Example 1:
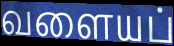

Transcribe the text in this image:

வளையப்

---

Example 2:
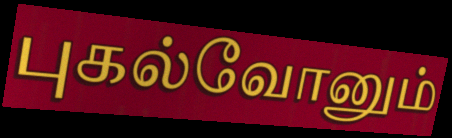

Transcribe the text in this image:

புகல்வோனும்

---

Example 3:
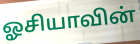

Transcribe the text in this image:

ஓசியாவின்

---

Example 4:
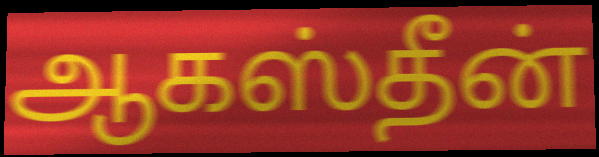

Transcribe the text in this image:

ஆகஸ்தீன்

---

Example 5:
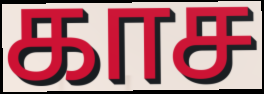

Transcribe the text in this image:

காச